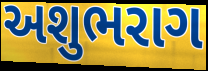
અશુભરાગ